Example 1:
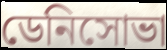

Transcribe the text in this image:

ডেনিসোভা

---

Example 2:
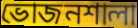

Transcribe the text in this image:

ভোজনশালা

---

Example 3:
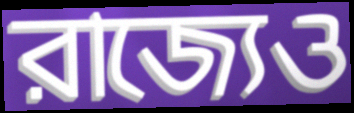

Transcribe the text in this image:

রাজ্যেও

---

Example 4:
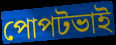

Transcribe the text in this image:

পোপটভাই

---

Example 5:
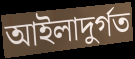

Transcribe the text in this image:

আইলাদুর্গত